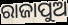
ରାଜାପୁଅ